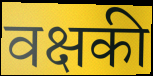
वक्षकी